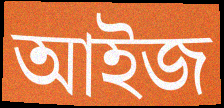
আইজ